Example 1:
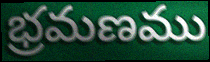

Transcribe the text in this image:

భ్రమణము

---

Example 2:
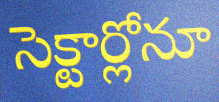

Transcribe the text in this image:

సెక్టార్లోనూ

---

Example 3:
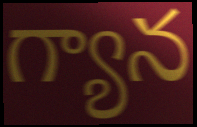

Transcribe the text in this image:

గ్యాన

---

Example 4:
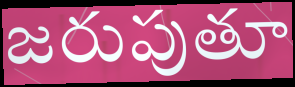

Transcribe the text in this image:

జరుపుతూ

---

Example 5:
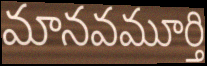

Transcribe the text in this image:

మానవమూర్తి